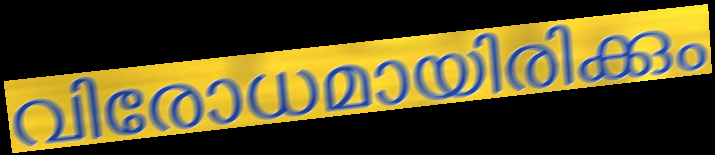
വിരോധമായിരിക്കും